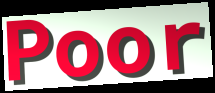
Poor